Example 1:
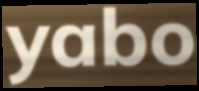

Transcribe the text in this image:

yabo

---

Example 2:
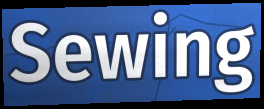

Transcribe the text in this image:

Sewing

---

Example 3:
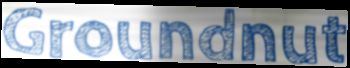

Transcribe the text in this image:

Groundnut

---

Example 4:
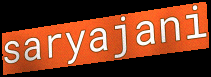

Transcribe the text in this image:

saryajani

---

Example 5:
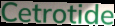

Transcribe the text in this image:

Cetrotide